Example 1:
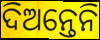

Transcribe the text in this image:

ଦିଅନ୍ତେନି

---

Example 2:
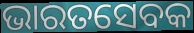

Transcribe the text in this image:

ଭାରତସେବକ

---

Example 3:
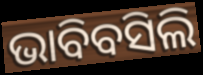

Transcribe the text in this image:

ଭାବିବସିଲି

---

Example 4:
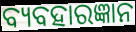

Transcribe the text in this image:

ବ୍ୟବହାରଜ୍ଞାନ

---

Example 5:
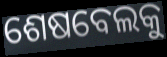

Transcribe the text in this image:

ଶେଷବେଲକୁ